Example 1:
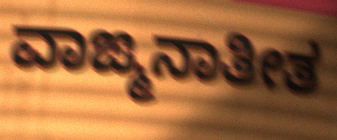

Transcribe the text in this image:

ವಾಙ್ಮನಾತೀತ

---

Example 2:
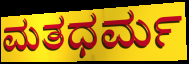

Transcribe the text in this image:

ಮತಧರ್ಮ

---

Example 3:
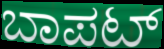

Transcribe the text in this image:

ಬಾಪಟ್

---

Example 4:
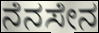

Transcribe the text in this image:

ನೆನಸೇನ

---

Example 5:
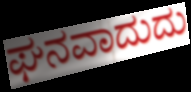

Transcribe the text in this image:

ಘನವಾದುದು